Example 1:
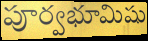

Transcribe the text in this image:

పూర్వభూమిషు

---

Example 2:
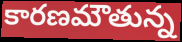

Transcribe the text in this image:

కారణమౌతున్న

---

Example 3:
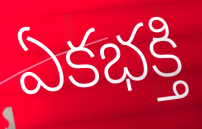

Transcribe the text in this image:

ఏకభక్తి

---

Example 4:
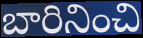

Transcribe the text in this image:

బారినించి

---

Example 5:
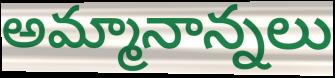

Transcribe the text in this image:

అమ్మానాన్నలు